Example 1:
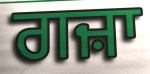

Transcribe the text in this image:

ਗਜ਼ਾ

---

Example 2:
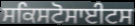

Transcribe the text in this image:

ਸਕਿਸਟੋਸਾਈਟਸ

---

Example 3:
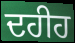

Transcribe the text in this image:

ਦਹੀਹ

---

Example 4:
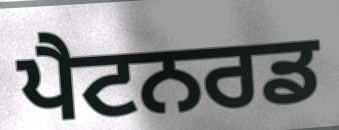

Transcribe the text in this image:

ਪੈਟਨਰਡ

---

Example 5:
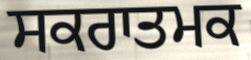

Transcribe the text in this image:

ਸਕਰਾਤਮਕ